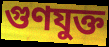
গুণযুক্ত